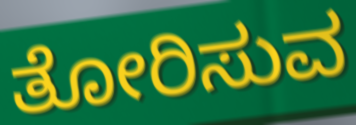
ತೋರಿಸುವ